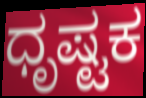
ಧೃಷ್ಟಕ